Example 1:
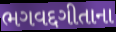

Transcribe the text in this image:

ભગવદ્દગીતાના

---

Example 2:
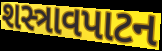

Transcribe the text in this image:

શસ્ત્રાવપાટન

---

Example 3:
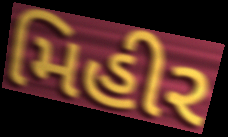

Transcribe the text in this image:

મિહીર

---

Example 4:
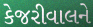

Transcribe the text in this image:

કેજરીવાલને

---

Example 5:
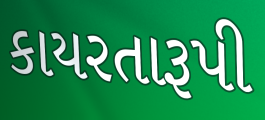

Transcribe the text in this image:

કાયરતારૂપી